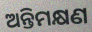
ଅନ୍ତିମକ୍ଷଣ